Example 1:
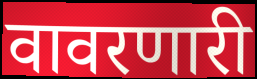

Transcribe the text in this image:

वावरणारी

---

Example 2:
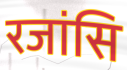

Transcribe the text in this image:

रजांसि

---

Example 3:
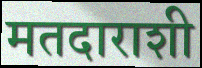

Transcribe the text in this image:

मतदाराशी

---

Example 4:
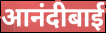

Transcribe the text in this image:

आनंदीबाई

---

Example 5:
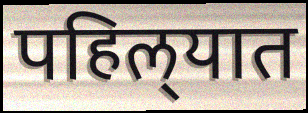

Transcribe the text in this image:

पहिल्यात